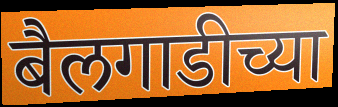
बैलगाडीच्या